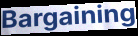
Bargaining